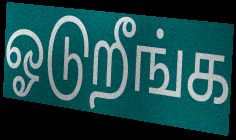
ஓடுறீங்க